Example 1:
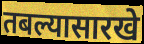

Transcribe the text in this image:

तबल्यासारखे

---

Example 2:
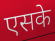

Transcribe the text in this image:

एसके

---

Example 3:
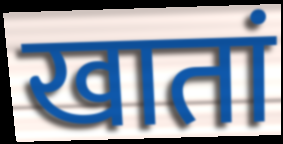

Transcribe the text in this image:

खातां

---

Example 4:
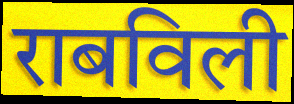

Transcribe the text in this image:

राबविली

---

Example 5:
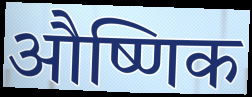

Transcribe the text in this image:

औष्णिक